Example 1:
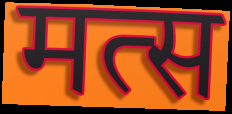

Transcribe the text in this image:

मत्स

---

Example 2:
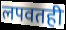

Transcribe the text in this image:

लपवतही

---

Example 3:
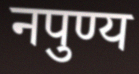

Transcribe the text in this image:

नपुण्य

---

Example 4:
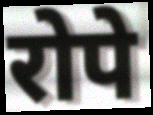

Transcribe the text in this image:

रोपे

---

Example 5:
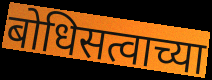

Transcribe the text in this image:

बोधिसत्वाच्या